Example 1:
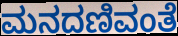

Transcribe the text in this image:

ಮನದಣಿವಂತೆ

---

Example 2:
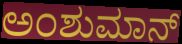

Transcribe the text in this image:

ಅಂಶುಮಾನ್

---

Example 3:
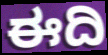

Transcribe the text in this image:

ಈದಿ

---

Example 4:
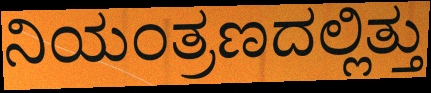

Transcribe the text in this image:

ನಿಯಂತ್ರಣದಲ್ಲಿತ್ತು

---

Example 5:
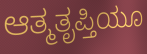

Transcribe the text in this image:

ಆತ್ಮತೃಪ್ತಿಯೂ